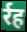
र्रह